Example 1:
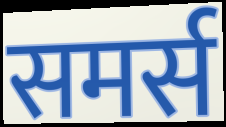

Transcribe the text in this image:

समर्स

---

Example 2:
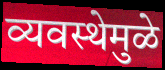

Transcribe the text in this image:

व्यवस्थेमुळे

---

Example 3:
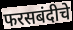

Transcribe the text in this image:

फरसबंदीचे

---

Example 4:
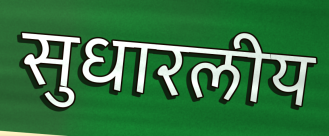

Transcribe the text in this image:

सुधारलीय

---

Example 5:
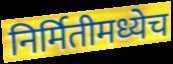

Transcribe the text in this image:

निर्मितीमध्येच